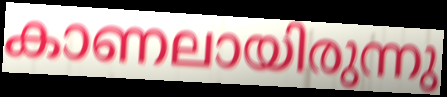
കാണലായിരുന്നു